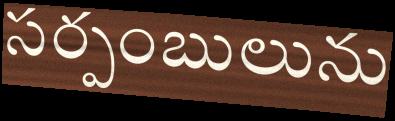
సర్పంబులును